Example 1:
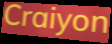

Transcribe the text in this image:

Craiyon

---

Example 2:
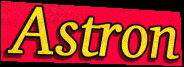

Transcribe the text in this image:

Astron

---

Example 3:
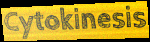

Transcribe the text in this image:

Cytokinesis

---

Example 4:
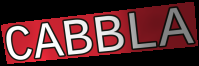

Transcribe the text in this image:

CABBLA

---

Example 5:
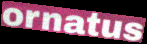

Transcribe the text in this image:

ornatus